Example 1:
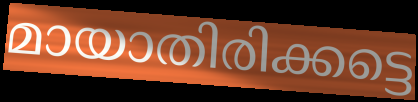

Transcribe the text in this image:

മായാതിരിക്കട്ടെ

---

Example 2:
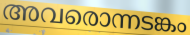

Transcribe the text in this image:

അവരൊന്നടങ്കം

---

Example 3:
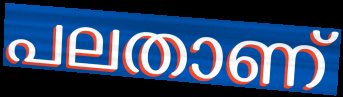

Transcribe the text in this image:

പലതാണ്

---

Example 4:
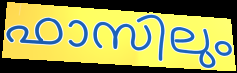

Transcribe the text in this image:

ഫാസിലും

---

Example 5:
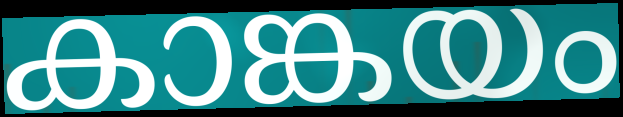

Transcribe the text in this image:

കാങ്കയം